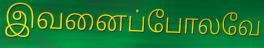
இவனைப்போலவே